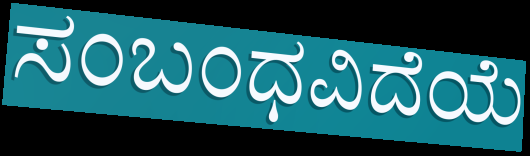
ಸಂಬಂಧವಿದೆಯೆ